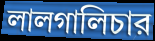
লালগালিচার